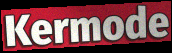
Kermode